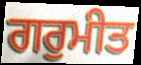
ਗਰੁਮੀਤ